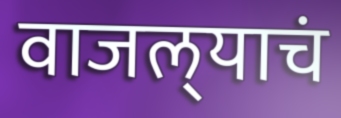
वाजल्याचं